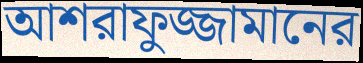
আশরাফুজ্জামানের